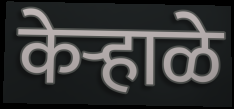
केऱ्हाळे